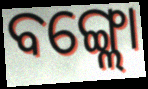
ବଙ୍ଗ୍ଲୋ